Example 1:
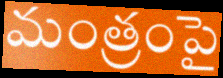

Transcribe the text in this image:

మంత్రంపై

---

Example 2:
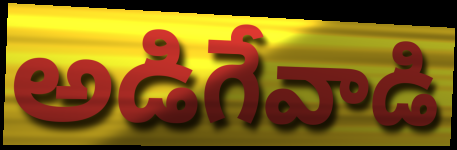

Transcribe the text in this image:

అడిగేవాడి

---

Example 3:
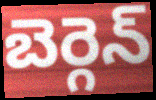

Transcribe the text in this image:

బెర్గెన్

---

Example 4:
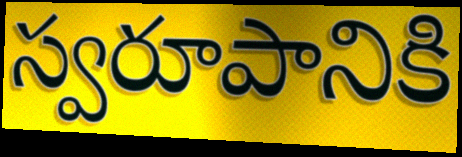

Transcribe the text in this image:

స్వరూపానికి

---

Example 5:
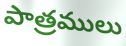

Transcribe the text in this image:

పాత్రములు